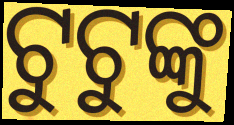
ଟୁଟୁଙ୍କୁ